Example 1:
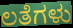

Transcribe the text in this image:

ಲತೆಗಳು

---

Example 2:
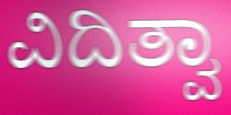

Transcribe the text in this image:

ವಿದಿತ್ವಾ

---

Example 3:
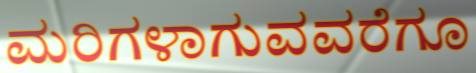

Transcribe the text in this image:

ಮರಿಗಳಾಗುವವರೆಗೂ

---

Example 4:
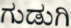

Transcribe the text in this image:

ಗುಡುಗಿ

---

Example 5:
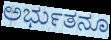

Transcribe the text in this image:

ಅರ್ಭುತನೂ